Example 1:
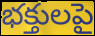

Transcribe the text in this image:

భక్తులపై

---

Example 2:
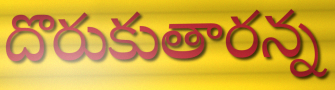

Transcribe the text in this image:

దొరుకుతారన్న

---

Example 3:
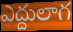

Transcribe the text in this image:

ఎద్దులాగ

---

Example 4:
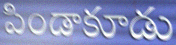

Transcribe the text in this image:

పిండాకూడు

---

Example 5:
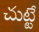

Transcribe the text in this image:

చుట్టే